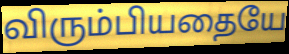
விரும்பியதையே